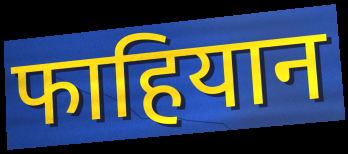
फाहियान